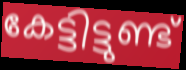
കേട്ടിട്ടുണ്ട്